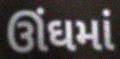
ઊંઘમાં